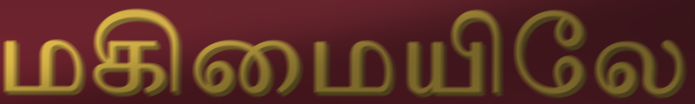
மகிமையிலே